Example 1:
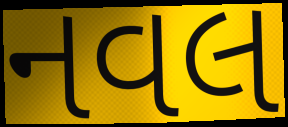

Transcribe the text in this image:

નવલ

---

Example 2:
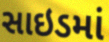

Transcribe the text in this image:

સાઇડમાં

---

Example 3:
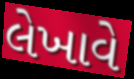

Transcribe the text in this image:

લેખાવે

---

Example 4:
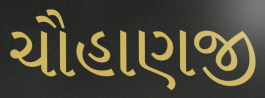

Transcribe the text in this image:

ચૌહાણજી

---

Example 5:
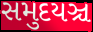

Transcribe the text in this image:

સમુદયઞ્ચ